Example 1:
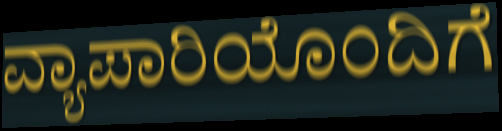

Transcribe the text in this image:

ವ್ಯಾಪಾರಿಯೊಂದಿಗೆ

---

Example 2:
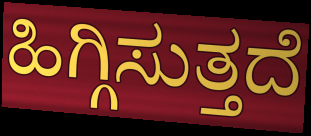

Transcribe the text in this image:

ಹಿಗ್ಗಿಸುತ್ತದೆ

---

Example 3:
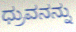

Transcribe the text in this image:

ಧ್ರುವನನ್ನು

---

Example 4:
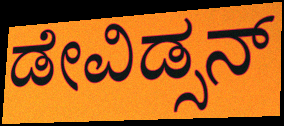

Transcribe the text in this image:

ಡೇವಿಡ್ಸನ್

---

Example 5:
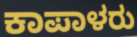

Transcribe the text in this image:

ಕಾಪಾಳರು